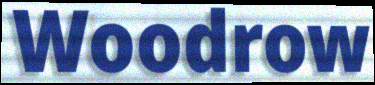
Woodrow